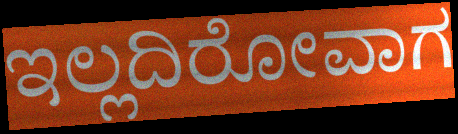
ಇಲ್ಲದಿರೋವಾಗ